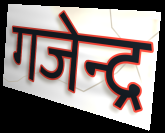
गजेन्‍द्र